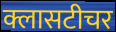
क्लासटीचर